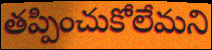
తప్పించుకోలేమని